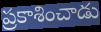
ప్రకాశించాడు